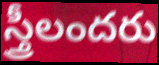
స్త్రీలందరు